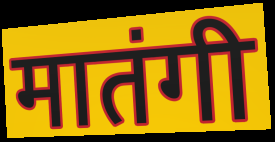
मातंगी